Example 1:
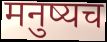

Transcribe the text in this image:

मनुष्यच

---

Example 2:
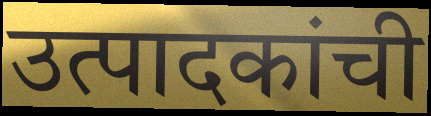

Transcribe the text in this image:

उत्पादकांची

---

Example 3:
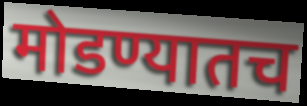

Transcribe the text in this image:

मोडण्यातच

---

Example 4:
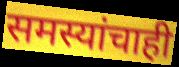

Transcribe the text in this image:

समस्यांचाही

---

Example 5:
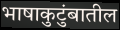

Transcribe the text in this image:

भाषाकुटुंबातील